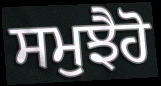
ਸਮੁਝੈਹੋ